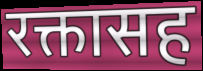
रक्तासह